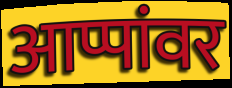
आप्पांवर